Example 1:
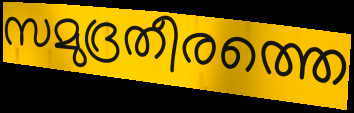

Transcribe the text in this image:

സമുദ്രതീരത്തെ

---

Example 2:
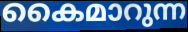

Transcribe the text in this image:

കൈമാറുന്ന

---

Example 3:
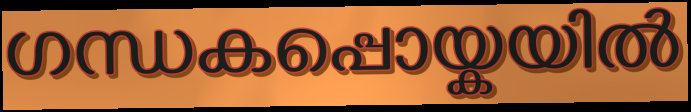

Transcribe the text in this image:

ഗന്ധകപ്പൊയ്കയിൽ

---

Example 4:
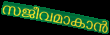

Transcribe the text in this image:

സജീവമാകാൻ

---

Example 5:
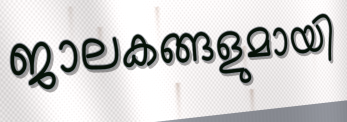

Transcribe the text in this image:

ജാലകങ്ങളുമായി